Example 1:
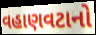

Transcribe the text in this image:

વહાણવટાનો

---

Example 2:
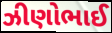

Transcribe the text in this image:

ઝીણોભાઈ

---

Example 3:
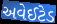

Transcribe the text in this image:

અવેઈટેડ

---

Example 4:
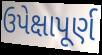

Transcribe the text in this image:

ઉપેક્ષાપૂર્ણ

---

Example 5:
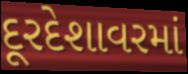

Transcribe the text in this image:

દૂરદેશાવરમાં